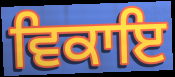
ਵਿਕਾਇ